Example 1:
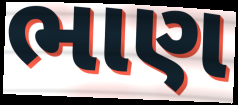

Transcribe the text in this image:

ભાણ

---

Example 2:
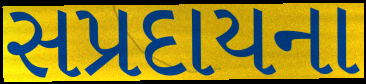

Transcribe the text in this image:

સપ્રદાયના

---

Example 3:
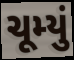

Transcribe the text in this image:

ચૂમ્યું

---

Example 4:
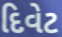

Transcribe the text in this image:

દિવેટ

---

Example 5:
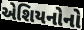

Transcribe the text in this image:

એશિયનોનો